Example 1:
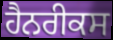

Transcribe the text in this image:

ਹੈਨਰੀਕਸ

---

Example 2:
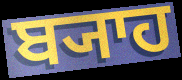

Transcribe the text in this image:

ਬ੍ਯਾਹ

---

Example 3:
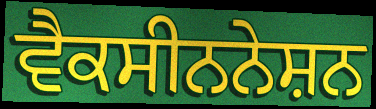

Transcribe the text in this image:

ਵੈਕਸੀਨਨੇਸ਼ਨ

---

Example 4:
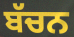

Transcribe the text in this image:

ਬੱਚਨ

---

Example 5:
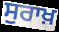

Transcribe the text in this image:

ਸੁਰਾਖ਼